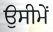
ਉਸੀਮੇਂ